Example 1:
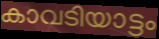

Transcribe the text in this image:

കാവടിയാട്ടം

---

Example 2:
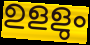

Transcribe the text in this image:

ഉളളും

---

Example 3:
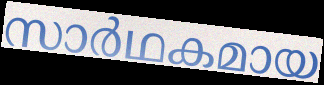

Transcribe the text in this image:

സാർഥകമായ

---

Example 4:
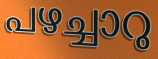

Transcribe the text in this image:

പഴച്ചാറു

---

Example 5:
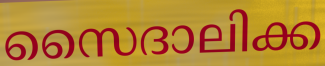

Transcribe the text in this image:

സൈദാലിക്ക